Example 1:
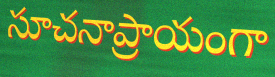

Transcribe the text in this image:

సూచనాప్రాయంగా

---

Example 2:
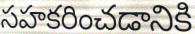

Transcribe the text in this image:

సహకరించడానికి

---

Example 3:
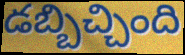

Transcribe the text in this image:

డబ్బిచ్చింది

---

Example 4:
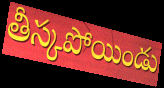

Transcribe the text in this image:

తీస్కపోయిండు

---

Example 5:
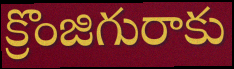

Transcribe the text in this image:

క్రొంజిగురాకు